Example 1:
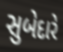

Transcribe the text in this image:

સુબેદારે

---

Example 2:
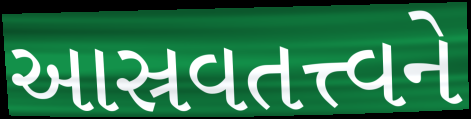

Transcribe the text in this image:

આસ્રવતત્ત્વને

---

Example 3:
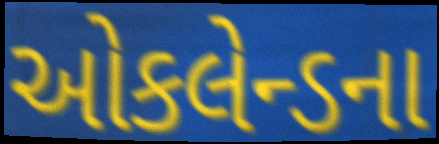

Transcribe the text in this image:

ઓકલેન્ડના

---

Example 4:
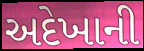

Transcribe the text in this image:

અદેખાની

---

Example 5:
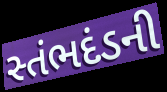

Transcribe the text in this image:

સ્તંભદંડની